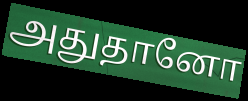
அதுதானோ